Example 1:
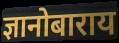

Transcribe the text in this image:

ज्ञानोबाराय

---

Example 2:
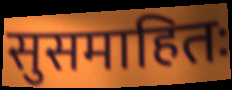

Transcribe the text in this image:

सुसमाहितः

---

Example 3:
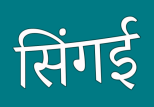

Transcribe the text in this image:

सिंगई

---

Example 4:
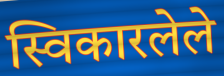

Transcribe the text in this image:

स्विकारलेले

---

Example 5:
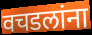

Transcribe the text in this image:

वचडलांना